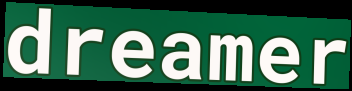
dreamer